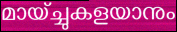
മായ്ച്ചുകളയാനും